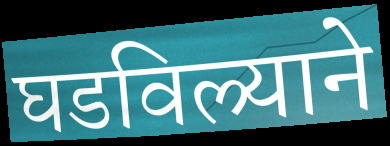
घडविल्याने